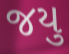
જયુ